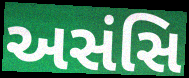
અસંસિ